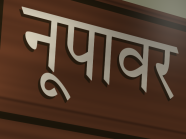
नूपावर